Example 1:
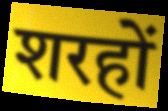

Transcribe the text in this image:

शरहों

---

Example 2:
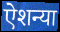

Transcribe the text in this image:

ऐशन्या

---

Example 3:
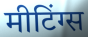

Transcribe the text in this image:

मीटिंग्स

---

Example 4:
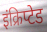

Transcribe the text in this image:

इंक्रिप्टेड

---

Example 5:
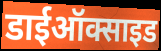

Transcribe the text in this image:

डाईऑक्साइड